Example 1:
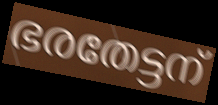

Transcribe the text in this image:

ഭരതേട്ടന്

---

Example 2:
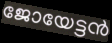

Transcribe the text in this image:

ജോയേട്ടൻ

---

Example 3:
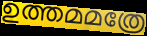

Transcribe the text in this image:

ഉത്തമമത്രേ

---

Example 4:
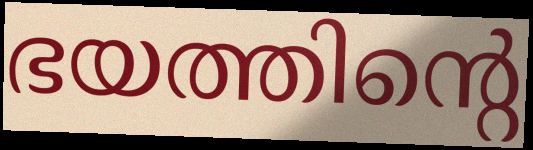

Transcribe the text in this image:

ഭയത്തിന്റെ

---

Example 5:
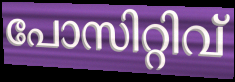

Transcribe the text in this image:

പോസിറ്റിവ്